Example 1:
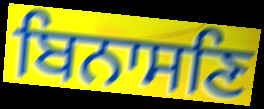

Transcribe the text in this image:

ਬਿਨਾਸਣਿ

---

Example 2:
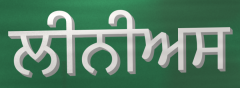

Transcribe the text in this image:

ਲੀਨੀਅਸ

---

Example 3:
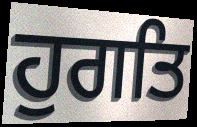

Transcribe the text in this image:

ਹੁਗਤਿ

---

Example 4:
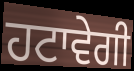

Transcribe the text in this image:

ਹਟਾਵੇਗੀ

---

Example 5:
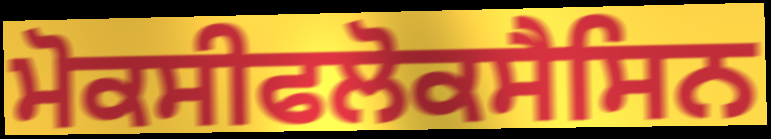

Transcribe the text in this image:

ਮੋਕਸੀਫਲੋਕਸੈਸਿਨ